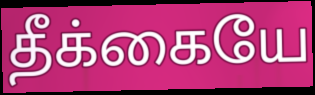
தீக்கையே